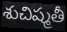
శుచిష్మతీ